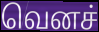
வெனச்